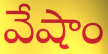
వేషాం